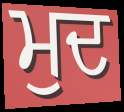
ਮੁਦ